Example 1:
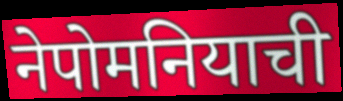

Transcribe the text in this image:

नेपोमनियाची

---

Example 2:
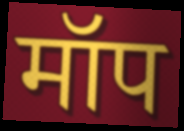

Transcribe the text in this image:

मॉप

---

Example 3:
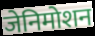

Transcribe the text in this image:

जेनिमोशन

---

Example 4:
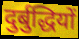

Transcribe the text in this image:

दुर्बुद्धियों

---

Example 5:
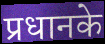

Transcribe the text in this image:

प्रधानके